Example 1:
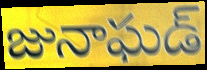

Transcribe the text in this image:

జునాఘడ్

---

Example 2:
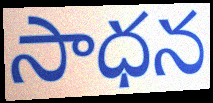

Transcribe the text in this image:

సాధన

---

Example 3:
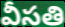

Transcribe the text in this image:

వీసతి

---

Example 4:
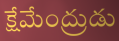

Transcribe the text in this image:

క్షేమేంద్రుడు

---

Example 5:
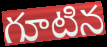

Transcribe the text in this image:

గూటిన